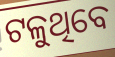
ଟଳୁଥିବେ